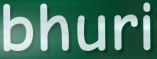
bhuri